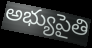
అభ్యుపైతి